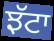
ਝੱਟਾ